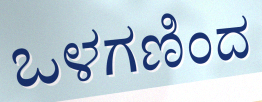
ಒಳಗಣಿಂದ